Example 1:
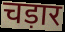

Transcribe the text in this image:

चड़ार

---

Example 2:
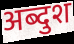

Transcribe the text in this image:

अब्दुश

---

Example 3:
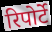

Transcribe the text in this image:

रिपोर्टे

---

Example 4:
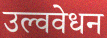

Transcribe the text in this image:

उल्ववेधन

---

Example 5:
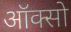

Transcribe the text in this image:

ऑक्सो